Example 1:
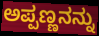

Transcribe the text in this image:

ಅಪ್ಪಣ್ಣನನ್ನು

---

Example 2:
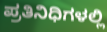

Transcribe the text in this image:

ಪ್ರತಿನಿಧಿಗಳಲ್ಲಿ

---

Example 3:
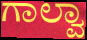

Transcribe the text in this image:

ಗಾಲ್ವಾ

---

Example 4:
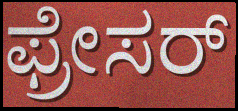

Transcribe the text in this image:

ಫ್ರೇಸರ್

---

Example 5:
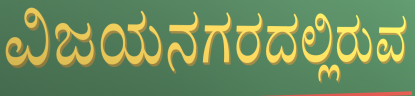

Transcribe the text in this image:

ವಿಜಯನಗರದಲ್ಲಿರುವ